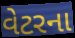
વેટરના